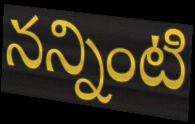
నన్నింటి